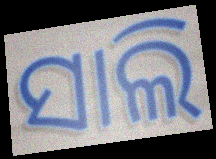
ସାଲି